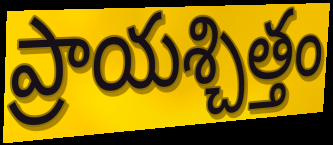
ప్రాయశ్చిత్తం